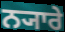
ਨ੍ਯਾਰੇ